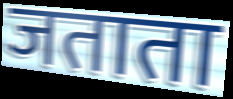
जताता